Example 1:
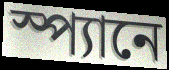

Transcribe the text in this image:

স্প্যানে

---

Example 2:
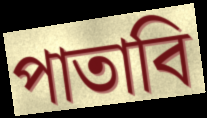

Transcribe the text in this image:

পাতাবি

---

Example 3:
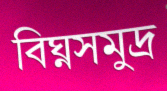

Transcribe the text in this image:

বিঘ্নসমুদ্র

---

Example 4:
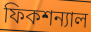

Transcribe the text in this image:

ফিকশন্যাল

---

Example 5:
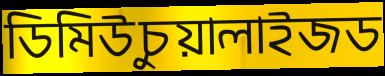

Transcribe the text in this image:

ডিমিউচুয়ালাইজড